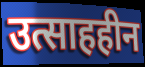
उत्साहहीन